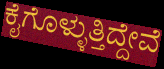
ಕೈಗೊಳ್ಳುತ್ತಿದ್ದೇವೆ